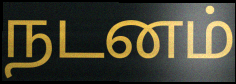
நடனம்